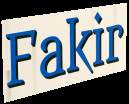
Fakir